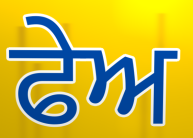
ਫੇਅ